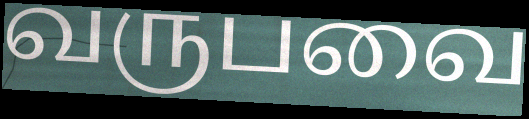
வருபவை